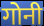
गोनी